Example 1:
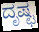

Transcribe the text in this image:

ದೃಷ್ಟ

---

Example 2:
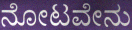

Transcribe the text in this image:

ನೋಟವೇನು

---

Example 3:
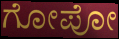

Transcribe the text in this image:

ಗೋಪೋ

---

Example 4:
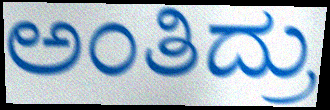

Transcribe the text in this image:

ಅಂತಿದ್ರು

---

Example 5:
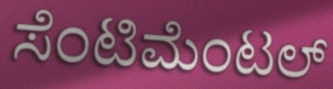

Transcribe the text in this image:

ಸೆಂಟಿಮೆಂಟಲ್